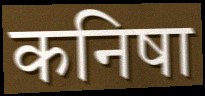
कनिषा